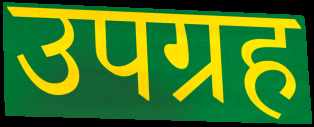
उपग्रह